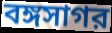
বঙ্গসাগর